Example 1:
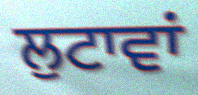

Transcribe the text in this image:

ਲੁਟਾਵਾਂ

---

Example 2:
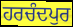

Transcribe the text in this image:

ਹਰਚੰਦਪੁਰ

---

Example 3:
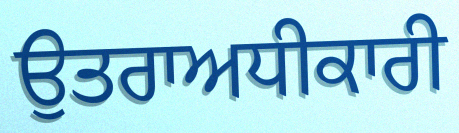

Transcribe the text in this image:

ਉਤਰਾਅਧੀਕਾਰੀ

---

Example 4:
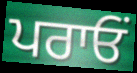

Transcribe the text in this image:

ਪਰਾਓਂ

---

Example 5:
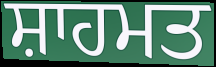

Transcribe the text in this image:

ਸ਼ਾਹਮਤ